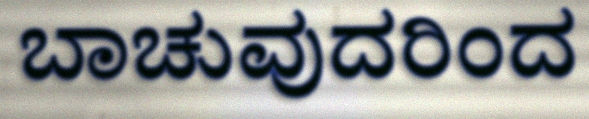
ಬಾಚುವುದರಿಂದ